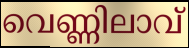
വെണ്ണിലാവ്